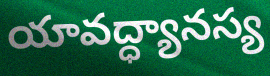
యావద్ధ్యానస్య